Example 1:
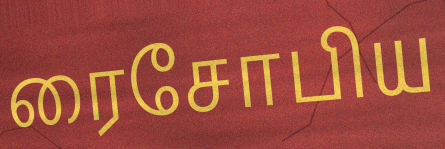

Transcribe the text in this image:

ரைசோபிய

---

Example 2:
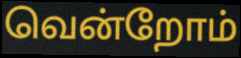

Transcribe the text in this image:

வென்றோம்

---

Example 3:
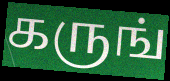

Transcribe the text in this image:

கருங்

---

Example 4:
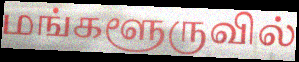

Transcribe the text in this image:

மங்களூருவில்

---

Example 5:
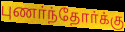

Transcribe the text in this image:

புணர்ந்தோர்க்கு